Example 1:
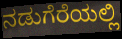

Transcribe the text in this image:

ನಡುಗೆರೆಯಲ್ಲಿ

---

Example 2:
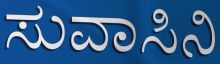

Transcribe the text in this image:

ಸುವಾಸಿನಿ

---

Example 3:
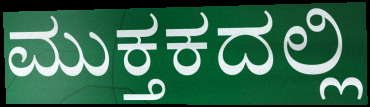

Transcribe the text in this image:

ಮುಕ್ತಕದಲ್ಲಿ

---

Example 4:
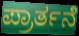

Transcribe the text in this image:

ಪ್ರಾರ್ತನೆ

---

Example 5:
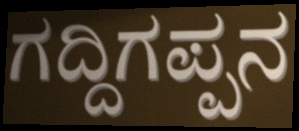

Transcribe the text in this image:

ಗದ್ದಿಗಪ್ಪನ